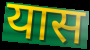
यास